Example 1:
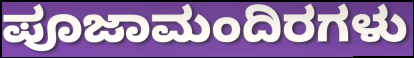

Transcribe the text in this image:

ಪೂಜಾಮಂದಿರಗಳು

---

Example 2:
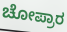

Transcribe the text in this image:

ಚೋಪ್ರಾರ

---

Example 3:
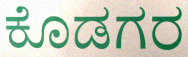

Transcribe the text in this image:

ಕೊಡಗರ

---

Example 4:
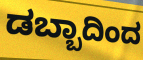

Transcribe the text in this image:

ಡಬ್ಬಾದಿಂದ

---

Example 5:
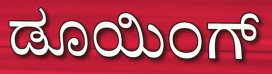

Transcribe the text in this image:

ಡೂಯಿಂಗ್